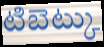
టిబెట్కు